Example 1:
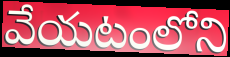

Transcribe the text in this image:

వేయటంలోని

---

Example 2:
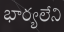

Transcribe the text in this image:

భార్యలేని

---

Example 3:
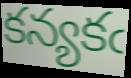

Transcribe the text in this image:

కన్యకఁ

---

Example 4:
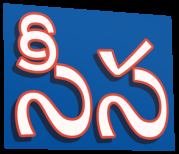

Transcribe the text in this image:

సీస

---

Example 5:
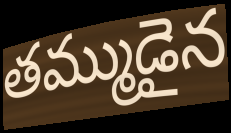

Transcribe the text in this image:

తమ్ముడైన